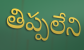
తిప్పలేని